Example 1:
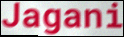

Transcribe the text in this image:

Jagani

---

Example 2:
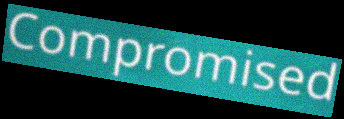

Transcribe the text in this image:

Compromised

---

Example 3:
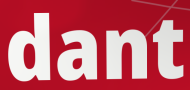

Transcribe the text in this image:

dant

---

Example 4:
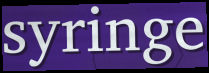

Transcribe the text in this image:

syringe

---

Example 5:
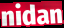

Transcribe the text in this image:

nidan